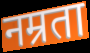
नम्रता